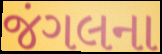
જંગલના